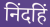
निंदहिं